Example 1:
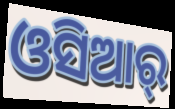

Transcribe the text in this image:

ଓସିଆର୍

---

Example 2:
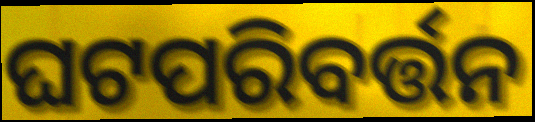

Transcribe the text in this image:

ଘଟପରିବର୍ତ୍ତନ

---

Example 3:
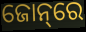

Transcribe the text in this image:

ଜୋନ୍‌ରେ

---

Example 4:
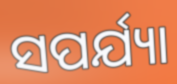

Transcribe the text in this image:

ସପର୍ଯ୍ୟା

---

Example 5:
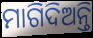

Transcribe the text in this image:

ମାଗିଦିଅନ୍ତି